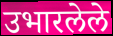
उभारलेले